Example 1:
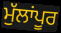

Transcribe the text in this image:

ਮੁੱਲਾਂਪੂਰ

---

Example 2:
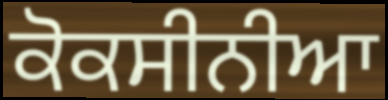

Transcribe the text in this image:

ਕੋਕਸੀਨੀਆ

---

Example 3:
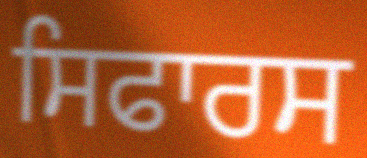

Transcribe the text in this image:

ਸਿਫਾਰਸ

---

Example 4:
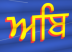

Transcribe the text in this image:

ਅਬਿ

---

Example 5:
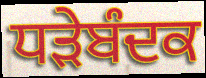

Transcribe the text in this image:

ਧੜੇਬੰਦਕ